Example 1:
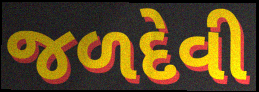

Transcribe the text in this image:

જળદેવી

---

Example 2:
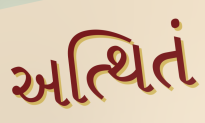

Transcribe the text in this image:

અત્થિતં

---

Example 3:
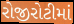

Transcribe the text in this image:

રોજીરોટીમાં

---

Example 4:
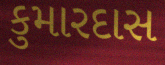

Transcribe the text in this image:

કુમારદાસ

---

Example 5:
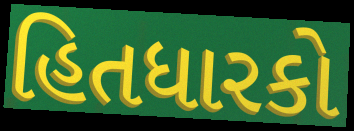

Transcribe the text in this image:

હિતધારકો